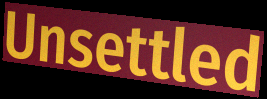
Unsettled